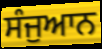
ਸੰਜੁਆਨ